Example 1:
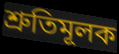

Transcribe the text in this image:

শ্রুতিমূলক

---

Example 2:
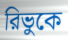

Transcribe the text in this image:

রিভুকে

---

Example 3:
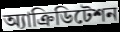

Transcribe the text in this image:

অ্যাক্রিডিটেশন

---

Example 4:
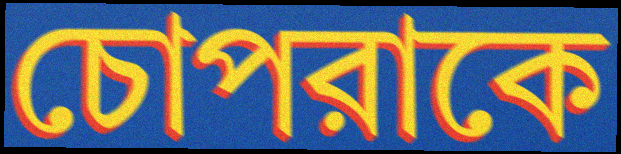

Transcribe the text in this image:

চোপরাকে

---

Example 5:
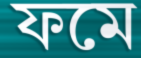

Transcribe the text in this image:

ফমে